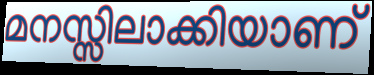
മനസ്സിലാക്കിയാണ്